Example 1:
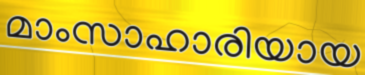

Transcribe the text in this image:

മാംസാഹാരിയായ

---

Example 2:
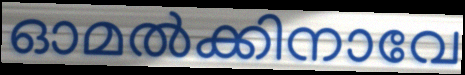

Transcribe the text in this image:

ഓമൽക്കിനാവേ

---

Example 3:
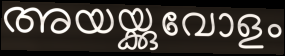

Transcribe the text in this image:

അയയ്ക്കുവോളം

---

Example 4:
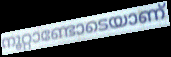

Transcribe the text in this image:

നൂറ്റാണ്ടോടെയാണ്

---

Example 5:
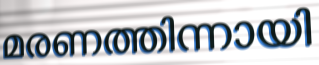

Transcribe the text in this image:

മരണത്തിന്നായി